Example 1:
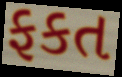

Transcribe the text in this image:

ફકત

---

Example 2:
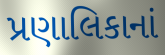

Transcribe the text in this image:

પ્રણાલિકાનાં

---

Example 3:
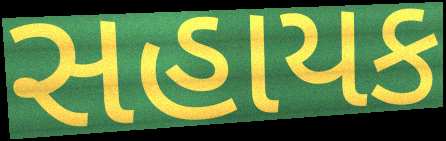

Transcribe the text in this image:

સહાયક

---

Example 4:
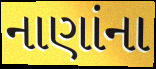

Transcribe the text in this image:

નાણાંના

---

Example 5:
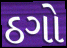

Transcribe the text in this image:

ઠગો